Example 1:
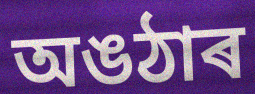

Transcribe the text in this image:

অঙঠাৰ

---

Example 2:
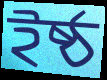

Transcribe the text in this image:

ইষ্ঠ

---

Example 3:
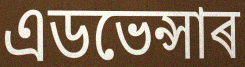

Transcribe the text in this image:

এডভেন্সাৰ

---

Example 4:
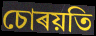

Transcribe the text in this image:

চোৰয়তি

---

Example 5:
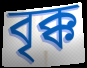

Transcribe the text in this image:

বৃক্ক